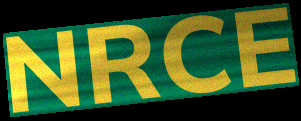
NRCE